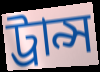
ট্ৰান্স